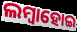
ଲମ୍ୱାହୋଇ